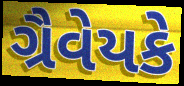
ગ્રૈવેયકે